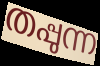
തപ്പുന്ന